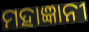
ମହାଜ୍ଞାନୀ